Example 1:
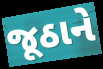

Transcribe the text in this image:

જૂઠાને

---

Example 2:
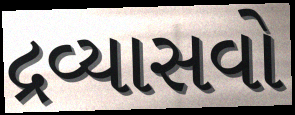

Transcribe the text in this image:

દ્રવ્યાસવો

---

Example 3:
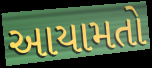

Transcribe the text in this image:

આયામતો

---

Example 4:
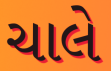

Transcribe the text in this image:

ચાલે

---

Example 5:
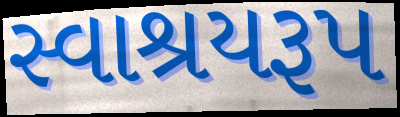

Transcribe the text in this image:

સ્વાશ્રયરૂપ